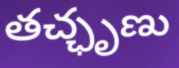
తచ్ఛృణు